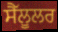
ਸੈੱਲੂਲਰ